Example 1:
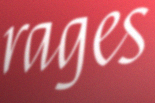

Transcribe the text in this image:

rages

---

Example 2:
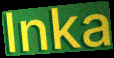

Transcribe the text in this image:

Inka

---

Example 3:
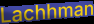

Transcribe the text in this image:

Lachhman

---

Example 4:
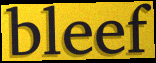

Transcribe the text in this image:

bleef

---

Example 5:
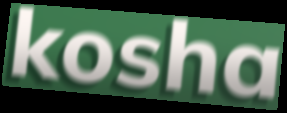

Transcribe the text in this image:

kosha